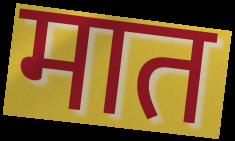
मात